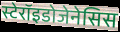
स्टेरॉइडोजेनेसिस